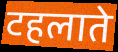
टहलाते